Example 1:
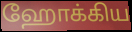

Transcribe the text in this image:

ஹோக்கிய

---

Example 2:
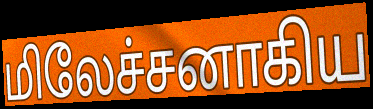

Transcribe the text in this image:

மிலேச்சனாகிய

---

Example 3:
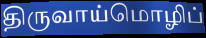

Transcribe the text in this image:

திருவாய்மொழிப்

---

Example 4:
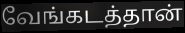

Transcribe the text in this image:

வேங்கடத்தான்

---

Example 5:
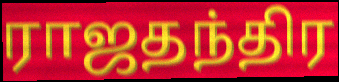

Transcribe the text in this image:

ராஜதந்திர